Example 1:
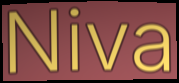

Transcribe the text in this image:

Niva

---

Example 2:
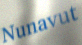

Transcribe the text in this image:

Nunavut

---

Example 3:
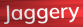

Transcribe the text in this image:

Jaggery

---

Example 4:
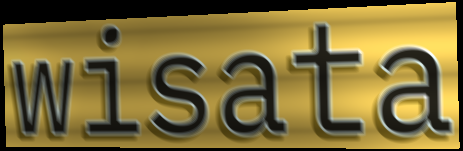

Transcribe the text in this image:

wisata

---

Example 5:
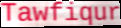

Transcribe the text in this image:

Tawfiqur